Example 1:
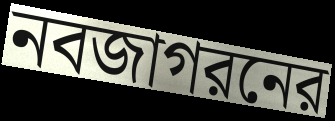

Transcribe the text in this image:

নবজাগরনের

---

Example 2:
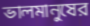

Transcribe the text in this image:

ভালমানুষের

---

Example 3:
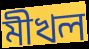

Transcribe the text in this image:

মীখল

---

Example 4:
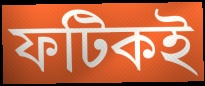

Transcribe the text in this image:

ফটিকই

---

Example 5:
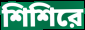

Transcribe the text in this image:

শিশিরে